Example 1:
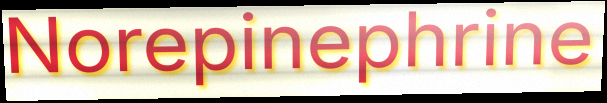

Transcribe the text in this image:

Norepinephrine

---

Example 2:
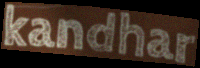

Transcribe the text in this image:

kandhar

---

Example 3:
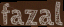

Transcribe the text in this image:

fazal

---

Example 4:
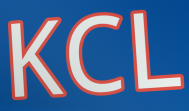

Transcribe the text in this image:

KCL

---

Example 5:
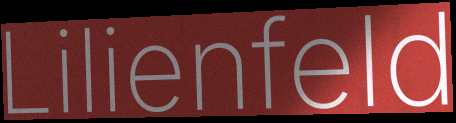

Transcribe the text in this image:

Lilienfeld